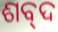
ଶବ୍‌ଦ